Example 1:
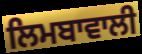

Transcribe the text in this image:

ਲਿਮਬਾਵਾਲੀ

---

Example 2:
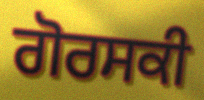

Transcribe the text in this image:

ਗੋਰਸਕੀ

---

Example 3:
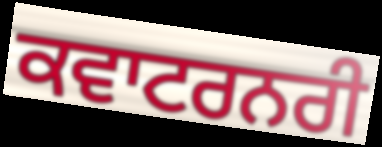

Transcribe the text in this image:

ਕਵਾਟਰਨਰੀ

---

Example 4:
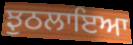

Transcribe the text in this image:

ਝੁਠਲਾਇਆ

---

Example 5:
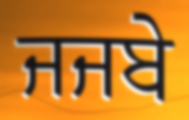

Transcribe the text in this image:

ਜਜਬੇ